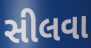
સીલવા